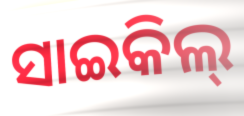
ସାଇକିଲ୍